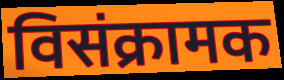
विसंक्रामक